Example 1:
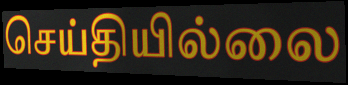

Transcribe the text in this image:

செய்தியில்லை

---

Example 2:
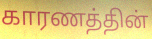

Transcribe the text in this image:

காரணத்தின்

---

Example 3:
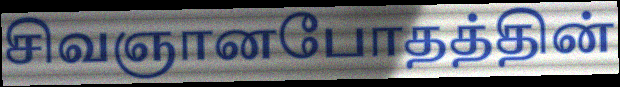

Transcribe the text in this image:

சிவஞானபோதத்தின்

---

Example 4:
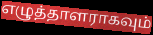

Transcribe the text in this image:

எழுத்தாளராகவும்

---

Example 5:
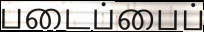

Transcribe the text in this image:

படைப்பைப்